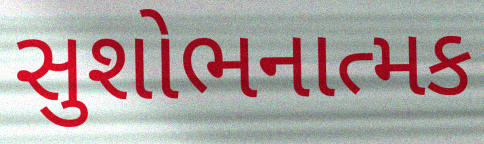
સુશોભનાત્મક